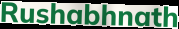
Rushabhnath